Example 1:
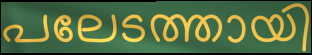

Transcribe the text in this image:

പലേടത്തായി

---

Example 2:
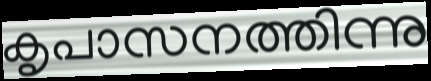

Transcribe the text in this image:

കൃപാസനത്തിന്നു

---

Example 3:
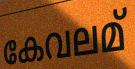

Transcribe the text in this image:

കേവലമ്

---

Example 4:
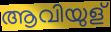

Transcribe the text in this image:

ആവിയുള്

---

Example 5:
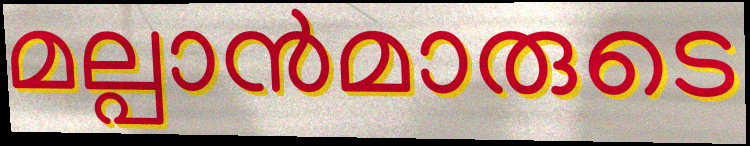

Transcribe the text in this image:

മല്പാൻമാരുടെ